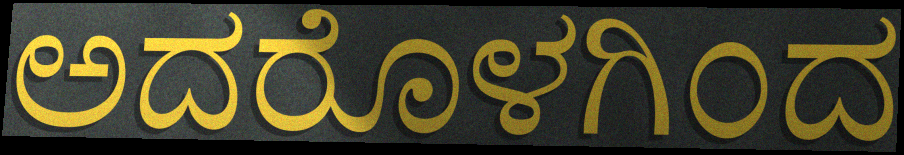
ಅದರೊಳಗಿಂದ